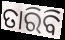
ତାରିବି